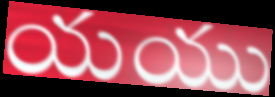
యయు